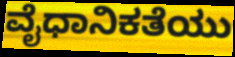
ವೈಧಾನಿಕತೆಯು